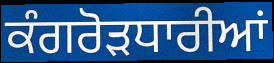
ਕੰਗਰੋੜਧਾਰੀਆਂ